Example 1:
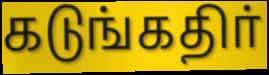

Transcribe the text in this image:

கடுங்கதிர்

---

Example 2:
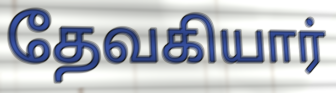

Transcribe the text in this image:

தேவகியார்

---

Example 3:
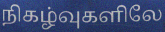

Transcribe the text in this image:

நிகழ்வுகளிலே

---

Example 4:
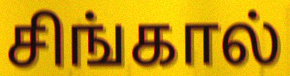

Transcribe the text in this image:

சிங்கால்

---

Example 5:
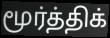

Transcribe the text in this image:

மூர்த்திக்